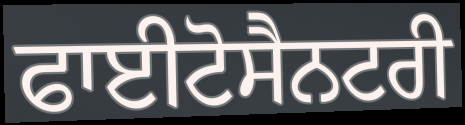
ਫਾਈਟੋਸੈਨਟਰੀ